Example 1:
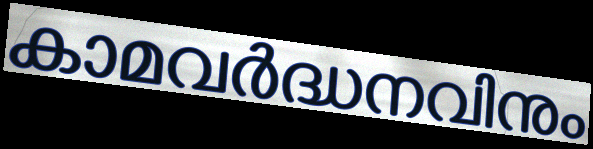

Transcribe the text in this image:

കാമവർദ്ധനവിനും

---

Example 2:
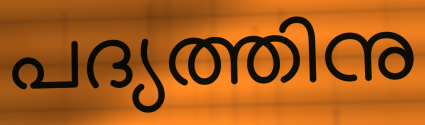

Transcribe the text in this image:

പദ്യത്തിനു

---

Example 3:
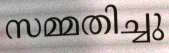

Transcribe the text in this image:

സമ്മതിച്ചു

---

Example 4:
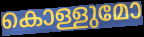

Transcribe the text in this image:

കൊള്ളുമോ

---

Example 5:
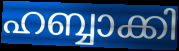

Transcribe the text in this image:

ഹബ്ബാക്കി